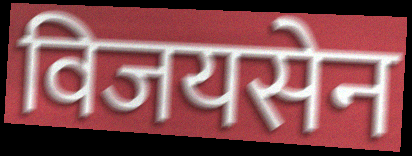
विजयसेन